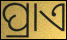
ପ୍ରାଏ